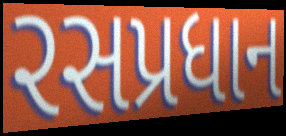
રસપ્રધાન